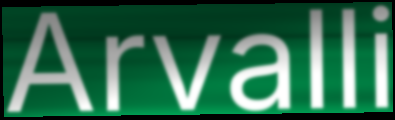
Arvalli